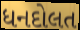
ધનદોલત